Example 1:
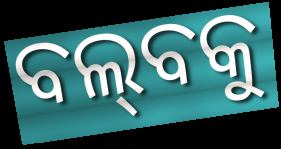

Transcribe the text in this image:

ବଲ୍‌ବକୁ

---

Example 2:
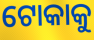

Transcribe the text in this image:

ଟୋକାକୁ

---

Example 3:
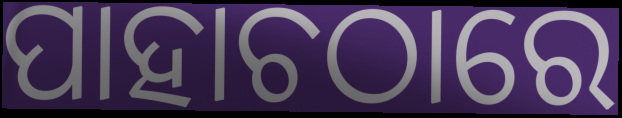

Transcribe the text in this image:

ପାହାଚଠାରେ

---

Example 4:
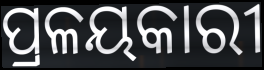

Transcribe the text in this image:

ପ୍ରଳୟକାରୀ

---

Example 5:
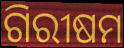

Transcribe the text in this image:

ଗିରୀଷମ